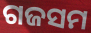
ଗଜସମ